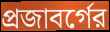
প্রজাবর্গের